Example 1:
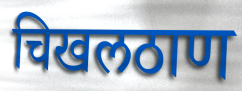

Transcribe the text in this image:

चिखलठाण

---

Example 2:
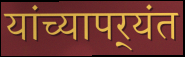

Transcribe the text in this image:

यांच्यापर्यंत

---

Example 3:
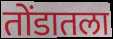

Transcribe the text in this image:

तोंडातला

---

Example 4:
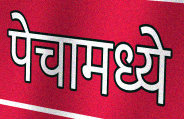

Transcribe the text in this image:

पेचामध्ये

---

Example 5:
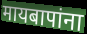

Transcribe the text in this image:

मायबापांना